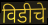
विडीचे